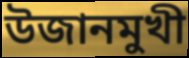
উজানমুখী